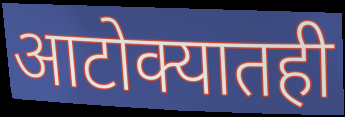
आटोक्यातही